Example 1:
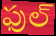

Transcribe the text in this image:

ఫుల్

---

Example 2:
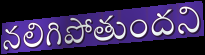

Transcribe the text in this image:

నలిగిపోతుందని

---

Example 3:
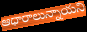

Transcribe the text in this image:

ఆధారాలున్నాయని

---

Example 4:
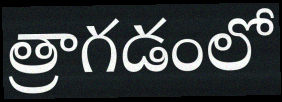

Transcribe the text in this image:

త్రాగడంలో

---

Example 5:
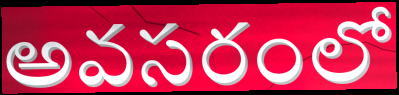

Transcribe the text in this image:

అవసరంలో